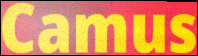
Camus